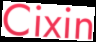
Cixin